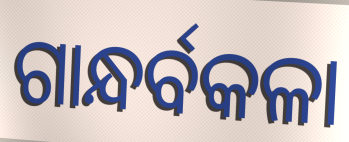
ଗାନ୍ଧର୍ବକଳା